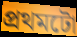
প্ৰথমটো